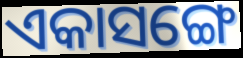
ଏକାସଙ୍ଗେ